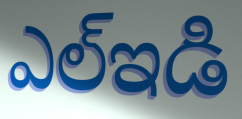
ఎల్ఇడి